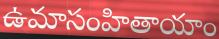
ఉమాసంహితాయాం